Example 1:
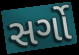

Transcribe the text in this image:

સર્ગો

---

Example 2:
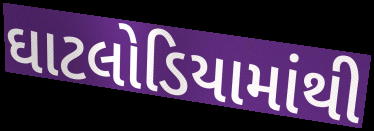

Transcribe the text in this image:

ઘાટલોડિયામાંથી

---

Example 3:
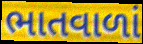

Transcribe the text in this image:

ભાતવાળાં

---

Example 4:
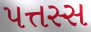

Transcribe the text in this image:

પત્તસ્સ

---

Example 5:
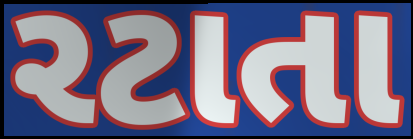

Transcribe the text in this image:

રટાતા